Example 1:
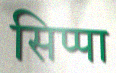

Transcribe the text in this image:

सिप्पा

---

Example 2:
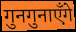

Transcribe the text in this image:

गुनगुनाएँगे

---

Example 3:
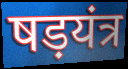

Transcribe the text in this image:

षड़यंत्र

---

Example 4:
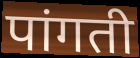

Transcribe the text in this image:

पांगती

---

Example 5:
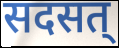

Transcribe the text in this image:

सदसत्